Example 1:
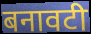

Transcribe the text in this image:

बनावटी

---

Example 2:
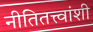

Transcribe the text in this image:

नीतितत्त्वांशी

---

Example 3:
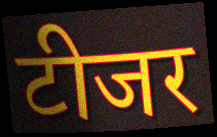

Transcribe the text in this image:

टीजर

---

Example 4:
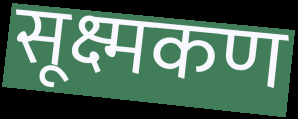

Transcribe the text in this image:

सूक्ष्मकण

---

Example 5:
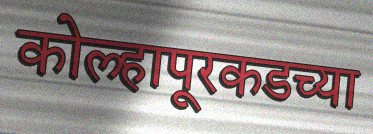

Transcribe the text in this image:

कोल्हापूरकडच्या